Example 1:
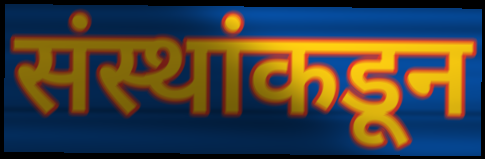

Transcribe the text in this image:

संस्थांकडून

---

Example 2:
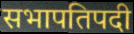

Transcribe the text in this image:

सभापतिपदी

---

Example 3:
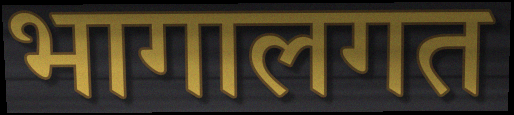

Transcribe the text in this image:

भागालगत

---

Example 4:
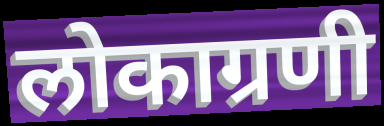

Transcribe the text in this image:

लोकाग्रणी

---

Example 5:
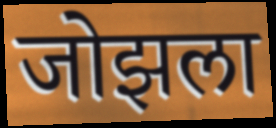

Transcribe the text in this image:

जोझला